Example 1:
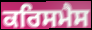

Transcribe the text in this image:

ਕਰਿਸਮੈਸ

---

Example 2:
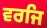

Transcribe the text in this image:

ਵਰਜਿ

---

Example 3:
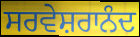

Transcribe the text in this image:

ਸਰਵੇਸ਼ਰਾਨੰਦ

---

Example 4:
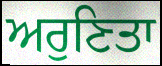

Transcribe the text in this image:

ਅਰੁਣਿਤਾ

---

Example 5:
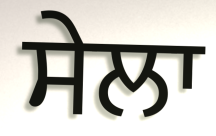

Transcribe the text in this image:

ਸੇਲਾ